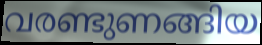
വരണ്ടുണങ്ങിയ